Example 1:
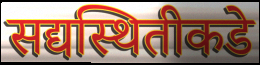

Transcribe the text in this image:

सद्यस्थितीकडे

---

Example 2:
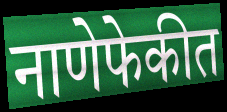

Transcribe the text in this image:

नाणेफेकीत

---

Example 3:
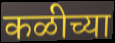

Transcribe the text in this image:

कळीच्या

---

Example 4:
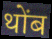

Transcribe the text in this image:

थोंब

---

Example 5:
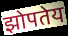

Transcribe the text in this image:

झोपतेय